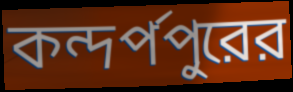
কন্দর্পপুরের